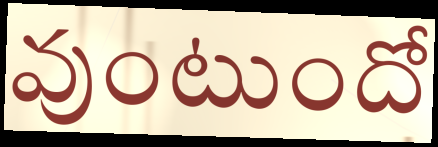
వుంటుందో